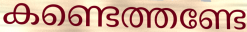
കണ്ടെത്തണ്ടേ